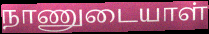
நாணுடையாள்